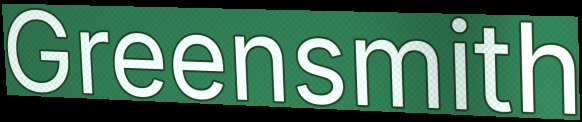
Greensmith